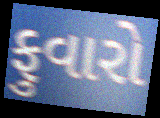
ફુવારો